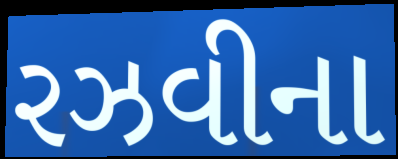
રઝવીના